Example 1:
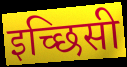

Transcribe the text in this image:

इच्छिसी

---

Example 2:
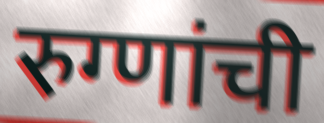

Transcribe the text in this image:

रुग्णांची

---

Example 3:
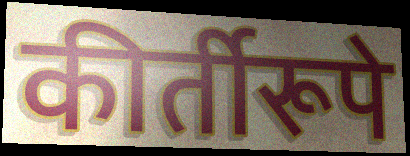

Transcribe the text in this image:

कीर्तीरूपे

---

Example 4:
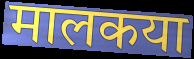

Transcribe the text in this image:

मालकया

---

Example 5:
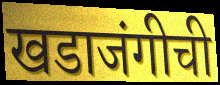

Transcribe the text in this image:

खडाजंगीची